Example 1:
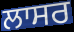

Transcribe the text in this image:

ਲਾਸਰ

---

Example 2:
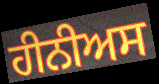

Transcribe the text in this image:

ਹੀਨੀਅਸ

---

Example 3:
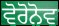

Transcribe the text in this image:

ਵੋਰੋਨੋਵ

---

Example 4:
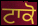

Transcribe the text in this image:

ਟਾਕੋ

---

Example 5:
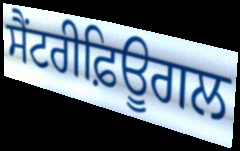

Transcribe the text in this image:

ਸੈਂਟਰੀਫ਼ਿਊਗਲ